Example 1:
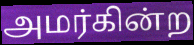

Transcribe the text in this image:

அமர்கின்ற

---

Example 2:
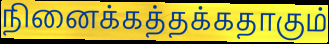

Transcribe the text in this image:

நினைக்கத்தக்கதாகும்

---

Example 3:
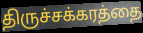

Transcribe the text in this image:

திருச்சக்கரத்தை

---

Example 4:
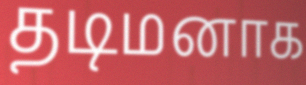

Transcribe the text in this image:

தடிமனாக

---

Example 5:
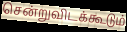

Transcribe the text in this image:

சென்றுவிடக்கூடும்